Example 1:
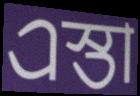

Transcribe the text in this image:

এস্তা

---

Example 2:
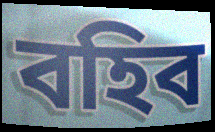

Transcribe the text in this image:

বহিব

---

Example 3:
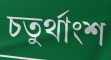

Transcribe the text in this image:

চতুর্থাংশ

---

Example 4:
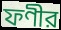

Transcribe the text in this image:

ফণীর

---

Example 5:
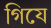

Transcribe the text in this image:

গিযে